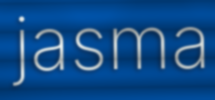
jasma